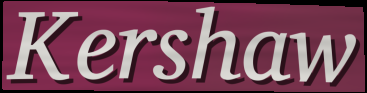
Kershaw